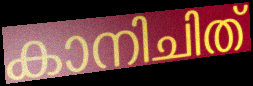
കാനിചിത്